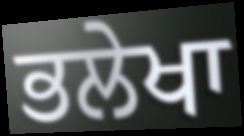
ਭਲੇਖਾ